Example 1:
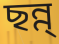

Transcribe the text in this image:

ছন্ন্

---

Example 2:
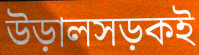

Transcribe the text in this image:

উড়ালসড়কই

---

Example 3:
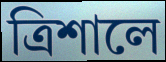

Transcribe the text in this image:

ত্রিশালে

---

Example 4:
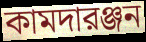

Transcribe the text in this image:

কামদারঞ্জন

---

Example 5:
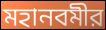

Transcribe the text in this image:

মহানবমীর